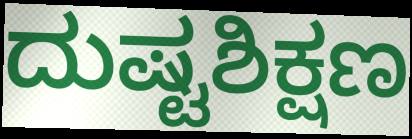
ದುಷ್ಟಶಿಕ್ಷಣ